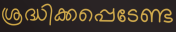
ശ്രദ്ധിക്കപ്പെടേണ്ട